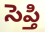
సెప్తి